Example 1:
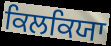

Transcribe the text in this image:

ਕਿਲਕਿਯਾ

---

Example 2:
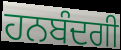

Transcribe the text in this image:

ਹਨਬੰਦਗੀ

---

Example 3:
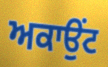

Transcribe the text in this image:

ਅਕਾਉਂਟ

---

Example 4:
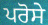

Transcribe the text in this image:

ਪਰੋਸੇ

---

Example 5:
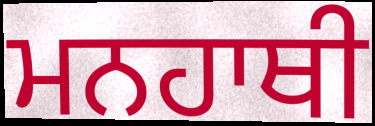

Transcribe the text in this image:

ਮਨਹਾਥੀ